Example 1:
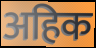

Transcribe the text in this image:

अहिक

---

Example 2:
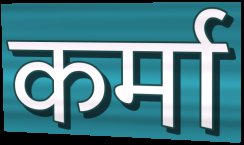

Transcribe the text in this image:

कर्मा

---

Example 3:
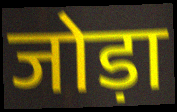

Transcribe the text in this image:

जोड़ा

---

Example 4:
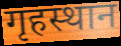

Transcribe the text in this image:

गृहस्थान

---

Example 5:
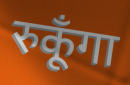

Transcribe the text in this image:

रुकूँगा